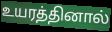
உயரத்தினால்